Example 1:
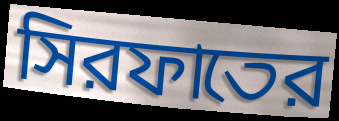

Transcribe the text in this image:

সিরফাতের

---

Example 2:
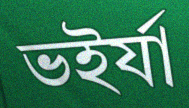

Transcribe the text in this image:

ভইর্যা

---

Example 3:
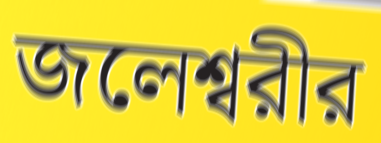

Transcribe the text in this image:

জলেশ্বরীর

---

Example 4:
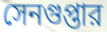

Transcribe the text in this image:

সেনগুপ্তার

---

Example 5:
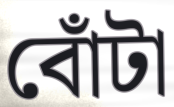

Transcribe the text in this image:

বোঁটা